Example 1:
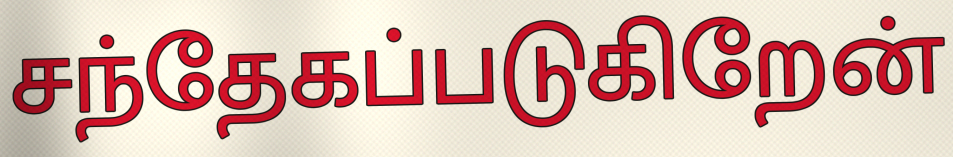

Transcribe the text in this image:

சந்தேகப்படுகிறேன்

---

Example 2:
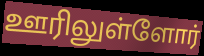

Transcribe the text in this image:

ஊரிலுள்ளோர்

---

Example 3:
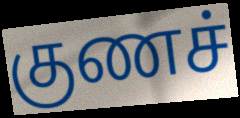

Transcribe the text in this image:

குணச்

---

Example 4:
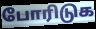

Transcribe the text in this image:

போரிடுக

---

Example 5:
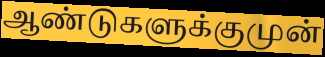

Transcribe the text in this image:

ஆண்டுகளுக்குமுன்